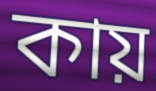
কায়